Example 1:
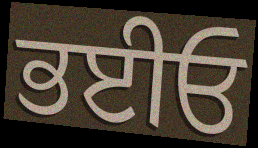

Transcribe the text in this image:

ਭਈਓ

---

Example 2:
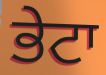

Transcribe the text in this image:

ਭੇਟਾ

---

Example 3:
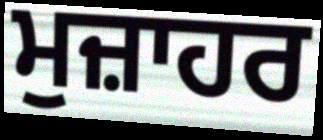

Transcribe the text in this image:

ਮੁਜ਼ਾਹਰ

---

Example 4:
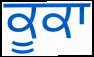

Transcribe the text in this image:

ਕੂਕਾ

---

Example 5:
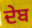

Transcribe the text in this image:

ਦੇਬ